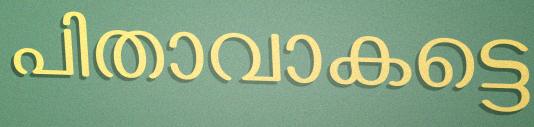
പിതാവാകട്ടെ